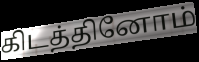
கிடத்தினோம்